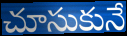
చూసుకునే